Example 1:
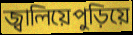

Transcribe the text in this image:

জ্বালিয়েপুড়িয়ে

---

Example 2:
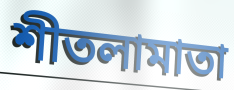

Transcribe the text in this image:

শীতলামাতা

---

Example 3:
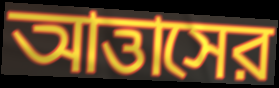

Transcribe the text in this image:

আত্তাসের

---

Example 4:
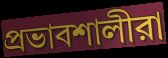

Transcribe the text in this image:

প্রভাবশালীরা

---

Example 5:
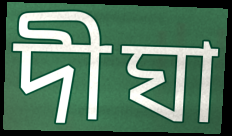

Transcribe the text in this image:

দীঘা